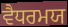
ਵੈਧਰਮਯ